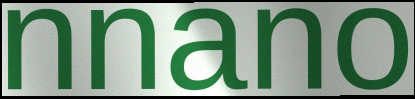
nnano